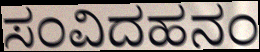
ಸಂವಿದಹನಂ